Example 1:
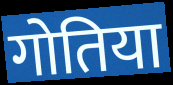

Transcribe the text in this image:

गोतिया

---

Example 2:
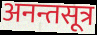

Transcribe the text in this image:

अनन्तसूत्र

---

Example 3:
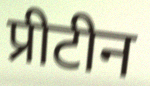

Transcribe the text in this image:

प्रीटीन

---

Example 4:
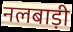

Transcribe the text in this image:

नलबाड़ी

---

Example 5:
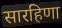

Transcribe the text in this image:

सारहिणा